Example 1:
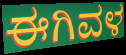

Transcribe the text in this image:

ಈಗಿವಳ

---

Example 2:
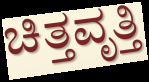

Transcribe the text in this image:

ಚಿತ್ತವೃತ್ತಿ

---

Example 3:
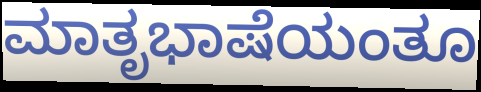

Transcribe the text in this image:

ಮಾತೃಭಾಷೆಯಂತೂ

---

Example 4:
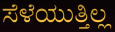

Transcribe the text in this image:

ಸೆಳೆಯುತ್ತಿಲ್ಲ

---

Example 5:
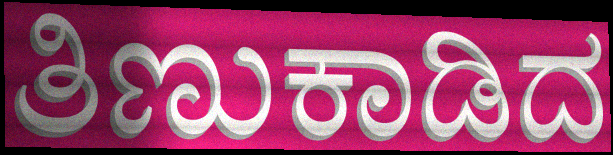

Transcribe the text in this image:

ತಿಣುಕಾಡಿದ